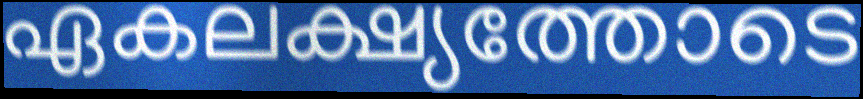
ഏകലക്ഷ്യത്തോടെ